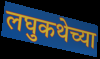
लघुकथेच्या